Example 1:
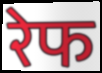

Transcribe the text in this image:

रेफ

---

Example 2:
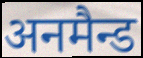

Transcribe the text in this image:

अनमैन्ड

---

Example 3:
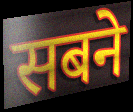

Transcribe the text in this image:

सबने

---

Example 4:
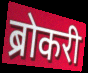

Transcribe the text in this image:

ब्रोकरी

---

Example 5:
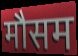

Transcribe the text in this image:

मौसम